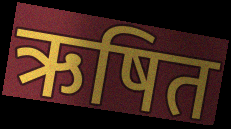
ऋषित